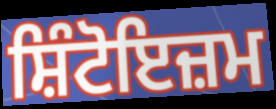
ਸ਼ਿੰਟੋਇਜ਼ਮ